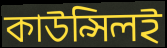
কাউন্সিলই